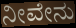
ನೀವೇನು